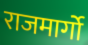
राजमार्गो